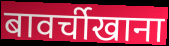
बावर्चीखाना